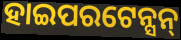
ହାଇପରଟେନ୍ସନ୍